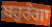
ਬਹੁਰੰਗਾ